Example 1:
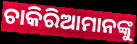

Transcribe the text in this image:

ଚାକିରିଆମାନଙ୍କୁ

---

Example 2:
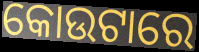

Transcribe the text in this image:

କୋଉଟାରେ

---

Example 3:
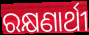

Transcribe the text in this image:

ରକ୍ଷଣାର୍ଥୀ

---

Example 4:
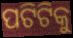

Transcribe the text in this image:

ପଟିଟିକୁ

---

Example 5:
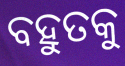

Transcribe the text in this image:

ବହୁତକୁ